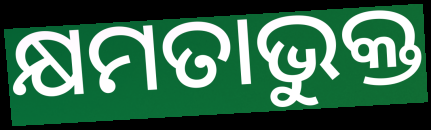
କ୍ଷମତାଭୁକ୍ତ